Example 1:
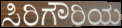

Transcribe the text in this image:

ಸಿರಿಗೌರಿಯ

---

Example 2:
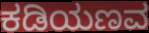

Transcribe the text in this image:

ಕಡಿಯಣವ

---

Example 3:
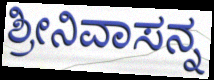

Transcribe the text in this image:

ಶ್ರೀನಿವಾಸನ್ನ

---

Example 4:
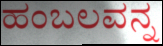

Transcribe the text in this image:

ಹಂಬಲವನ್ನ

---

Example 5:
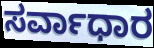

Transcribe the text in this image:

ಸರ್ವಾಧಾರ